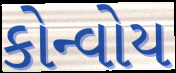
કોન્વોય